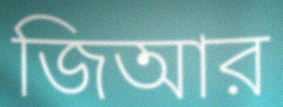
জিআর